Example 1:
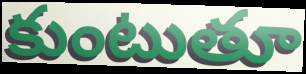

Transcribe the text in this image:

కుంటుతూ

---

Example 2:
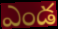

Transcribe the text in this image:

ఎండ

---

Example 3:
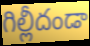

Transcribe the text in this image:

గిల్లీదండా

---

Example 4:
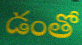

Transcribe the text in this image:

డంతో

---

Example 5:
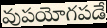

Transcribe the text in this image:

వుపయోగపడే